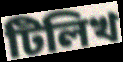
টিলিখ